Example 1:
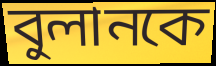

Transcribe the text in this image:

বুলানকে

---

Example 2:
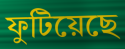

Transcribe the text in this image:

ফুটিয়েছে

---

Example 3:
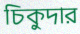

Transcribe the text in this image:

চিকুদার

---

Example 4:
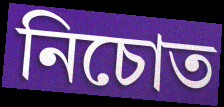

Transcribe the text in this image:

নিচোত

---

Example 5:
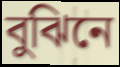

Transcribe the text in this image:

বুঝিনে